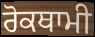
ਰੋਕਥਾਮੀ